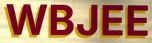
WBJEE